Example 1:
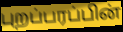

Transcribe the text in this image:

புறப்பரப்பின்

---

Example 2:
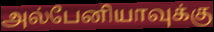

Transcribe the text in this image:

அல்பேனியாவுக்கு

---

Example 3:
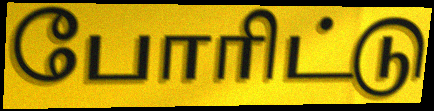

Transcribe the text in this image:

போரிட்டு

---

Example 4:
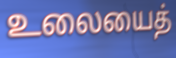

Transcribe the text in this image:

உலையைத்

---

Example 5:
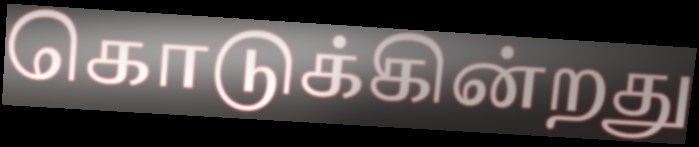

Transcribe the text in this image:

கொடுக்கின்றது